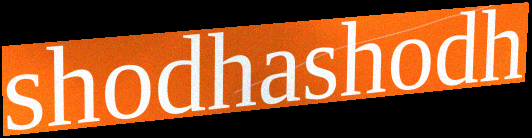
shodhashodh